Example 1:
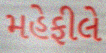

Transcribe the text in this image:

મહેફીલે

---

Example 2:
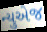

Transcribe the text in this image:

ન્યુએજ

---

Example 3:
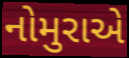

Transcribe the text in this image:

નોમુરાએ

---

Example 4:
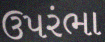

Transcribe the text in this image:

ઉપરંભા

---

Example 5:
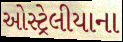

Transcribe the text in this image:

ઓસ્ટ્રેલીયાના